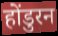
होंडुरन